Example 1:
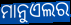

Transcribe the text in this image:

ମାନୁଏଲର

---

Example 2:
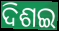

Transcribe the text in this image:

ଦିଶଇ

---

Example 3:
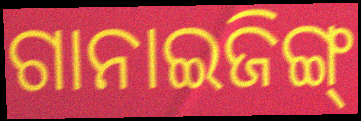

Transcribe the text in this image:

ଗାନାଇଜିଙ୍ଗ୍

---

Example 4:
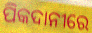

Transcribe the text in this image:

ପିକଦାନୀରେ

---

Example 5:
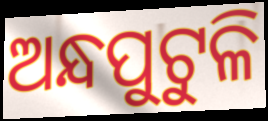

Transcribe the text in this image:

ଅନ୍ଧପୁଟୁଳି